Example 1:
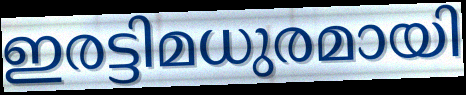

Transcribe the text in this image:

ഇരട്ടിമധുരമായി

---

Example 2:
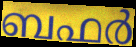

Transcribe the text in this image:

ബഫർ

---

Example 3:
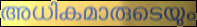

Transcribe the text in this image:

അധികമാരുടെയും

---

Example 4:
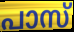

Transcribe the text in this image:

പാസ്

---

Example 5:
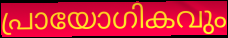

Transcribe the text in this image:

പ്രായോഗികവും